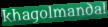
khagolmandal